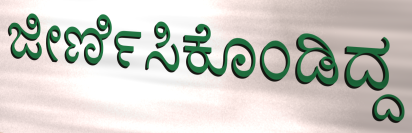
ಜೀರ್ಣಿಸಿಕೊಂಡಿದ್ದ